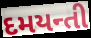
દમયન્તી